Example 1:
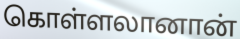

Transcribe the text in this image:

கொள்ளலானான்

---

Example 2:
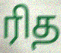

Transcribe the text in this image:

ரித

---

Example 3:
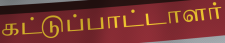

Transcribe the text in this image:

கட்டுப்பாட்டாளர்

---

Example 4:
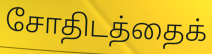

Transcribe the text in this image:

சோதிடத்தைக்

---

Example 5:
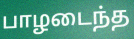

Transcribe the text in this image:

பாழடைந்த